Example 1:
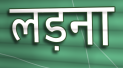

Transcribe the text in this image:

लड़ना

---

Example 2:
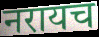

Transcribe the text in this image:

नरायच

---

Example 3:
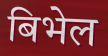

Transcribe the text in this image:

बिभेल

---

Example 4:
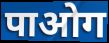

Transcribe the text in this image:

पाओग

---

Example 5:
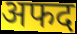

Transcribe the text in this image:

अफद